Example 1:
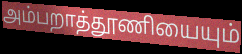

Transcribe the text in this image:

அம்பறாத்தூணியையும்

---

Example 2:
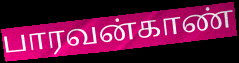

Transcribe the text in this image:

பாரவன்காண்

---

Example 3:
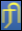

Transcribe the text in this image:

ரி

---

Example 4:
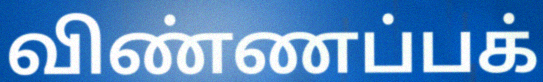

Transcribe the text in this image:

விண்ணப்பக்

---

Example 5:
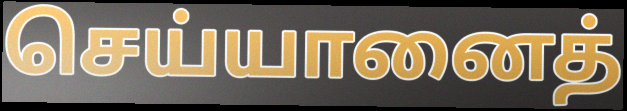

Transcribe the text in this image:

செய்யானைத்